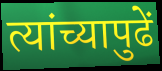
त्यांच्यापुढें